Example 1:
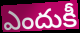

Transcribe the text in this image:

ఎందుకీ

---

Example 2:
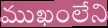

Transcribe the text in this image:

ముఖంలేని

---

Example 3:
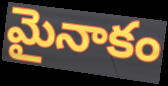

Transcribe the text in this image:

మైనాకం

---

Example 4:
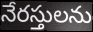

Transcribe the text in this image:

నేరస్తులను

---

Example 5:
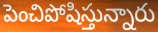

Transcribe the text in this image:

పెంచిపోషిస్తున్నారు